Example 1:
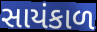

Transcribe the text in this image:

સાયંકાળ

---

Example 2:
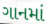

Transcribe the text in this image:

ગાનમાં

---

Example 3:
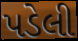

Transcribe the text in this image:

પડેલી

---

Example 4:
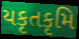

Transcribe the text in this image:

યકૃતકૃમિ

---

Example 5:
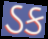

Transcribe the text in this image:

ડક